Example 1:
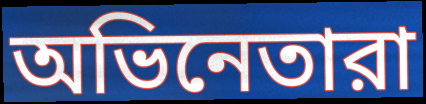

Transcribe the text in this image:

অভিনেতারা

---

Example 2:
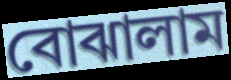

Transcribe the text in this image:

বোঝালাম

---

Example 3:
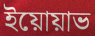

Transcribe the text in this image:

ইয়োয়াভ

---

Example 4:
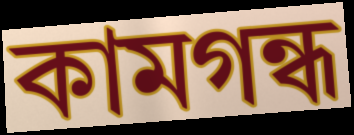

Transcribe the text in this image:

কামগন্ধ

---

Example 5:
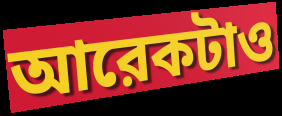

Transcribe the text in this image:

আরেকটাও